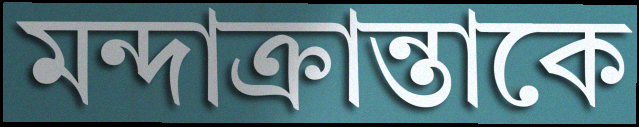
মন্দাক্রান্তাকে